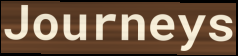
Journeys